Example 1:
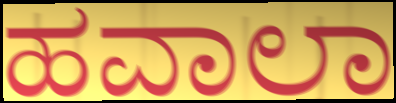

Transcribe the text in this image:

ಹವಾಲಾ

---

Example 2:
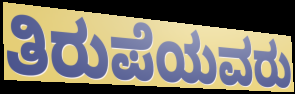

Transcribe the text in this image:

ತಿರುಪೆಯವರು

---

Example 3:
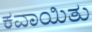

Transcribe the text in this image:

ಕವಾಯಿತು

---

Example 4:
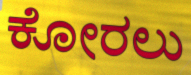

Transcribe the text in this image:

ಕೋರಲು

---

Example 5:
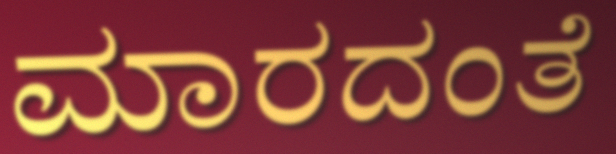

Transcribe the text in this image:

ಮಾರದಂತೆ